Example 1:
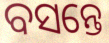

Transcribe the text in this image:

ବସନ୍ତେ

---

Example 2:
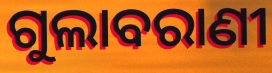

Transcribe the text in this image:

ଗୁଲାବରାଣୀ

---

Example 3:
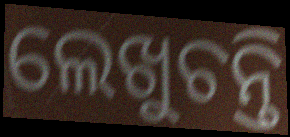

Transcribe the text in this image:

ଲେଖୁଚନ୍ତି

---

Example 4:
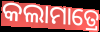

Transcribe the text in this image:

କଲାମାତ୍ରେ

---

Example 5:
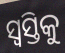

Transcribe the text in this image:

ସ୍ୱସ୍ତିକୁ